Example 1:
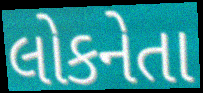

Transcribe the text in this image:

લોકનેતા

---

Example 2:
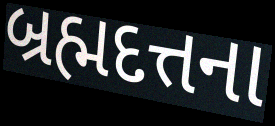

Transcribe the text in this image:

બ્રહ્મદત્તના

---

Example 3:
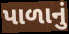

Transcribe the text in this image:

પાળાનું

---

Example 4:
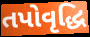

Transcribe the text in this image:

તપોવૃદ્ધિ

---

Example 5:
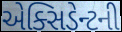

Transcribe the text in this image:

એક્સિડેન્ટની